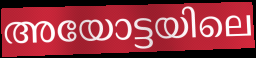
അയോട്ടയിലെ